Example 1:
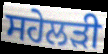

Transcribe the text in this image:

ਸਹੇਲੜੀ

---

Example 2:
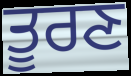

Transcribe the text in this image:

ਤੂਰਣ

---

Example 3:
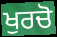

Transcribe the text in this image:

ਖੁਰਚੋ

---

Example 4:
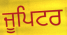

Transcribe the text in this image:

ਜੂਪਿਟਰ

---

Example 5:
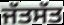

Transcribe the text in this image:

ਜੱਤਸੱਤ